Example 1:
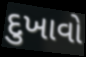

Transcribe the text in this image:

દુખાવો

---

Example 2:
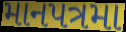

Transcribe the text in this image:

માનપત્રમા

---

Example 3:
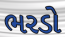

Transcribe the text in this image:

ભરડો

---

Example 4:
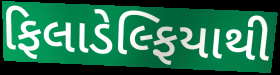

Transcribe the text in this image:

ફિલાડેલ્ફિયાથી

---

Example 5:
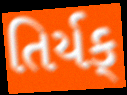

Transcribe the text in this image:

તિર્યક્